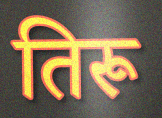
तिरू